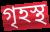
গৃহস্থ